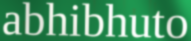
abhibhuto